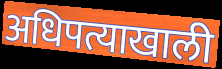
अधिपत्याखाली